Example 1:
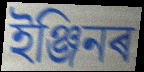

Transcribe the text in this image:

ইঞ্জিনৰ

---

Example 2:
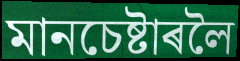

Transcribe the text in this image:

মানচেষ্টাৰলৈ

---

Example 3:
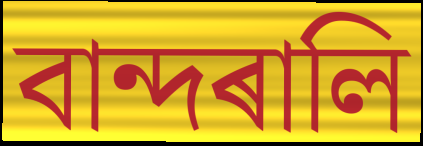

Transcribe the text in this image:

বান্দৰালি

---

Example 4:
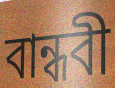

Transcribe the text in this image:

বান্ধবী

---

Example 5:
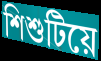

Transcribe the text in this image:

শিশুটিয়ে